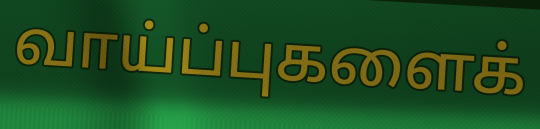
வாய்ப்புகளைக்